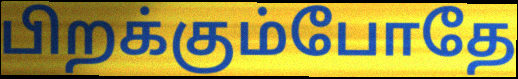
பிறக்கும்போதே